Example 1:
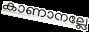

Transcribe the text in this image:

കാണാനല്ലേ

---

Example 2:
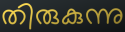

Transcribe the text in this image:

തിരുകുന്നു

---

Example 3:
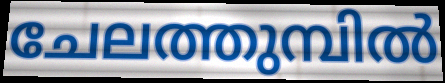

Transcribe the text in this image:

ചേലത്തുമ്പിൽ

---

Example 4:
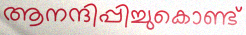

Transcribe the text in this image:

ആനന്ദിപ്പിച്ചുകൊണ്ട്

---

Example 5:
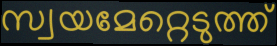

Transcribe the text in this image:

സ്വയമേറ്റെടുത്ത്